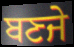
ਬਣਜੇ